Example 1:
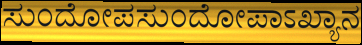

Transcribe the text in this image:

ಸುಂದೋಪಸುಂದೋಪಾಽಖ್ಯಾನ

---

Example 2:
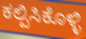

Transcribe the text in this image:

ಕಲ್ಪಿಸಿಕೊಳ್ಳಿ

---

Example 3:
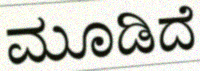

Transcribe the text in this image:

ಮೂಡಿದೆ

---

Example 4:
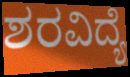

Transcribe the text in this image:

ಶರವಿದ್ಯೆ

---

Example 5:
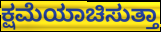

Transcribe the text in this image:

ಕ್ಷಮೆಯಾಚಿಸುತ್ತಾ